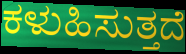
ಕಳುಹಿಸುತ್ತದೆ